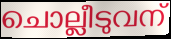
ചൊല്ലീടുവന്